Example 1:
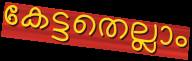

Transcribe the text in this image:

കേട്ടതെല്ലാം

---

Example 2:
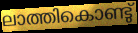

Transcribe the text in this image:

ലാത്തികൊണ്ടു്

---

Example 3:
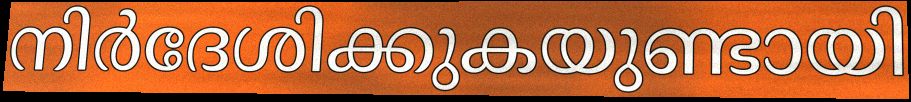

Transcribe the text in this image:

നിർദേശിക്കുകയുണ്ടായി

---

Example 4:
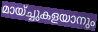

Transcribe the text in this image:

മായ്ച്ചുകളയാനും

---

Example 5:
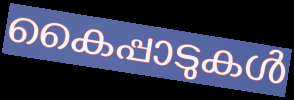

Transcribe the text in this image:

കൈപ്പാടുകൾ